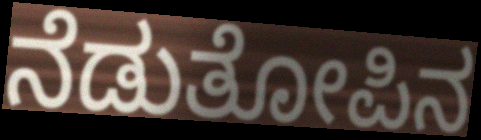
ನೆಡುತೋಪಿನ